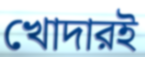
খোদারই